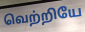
வெற்றியே